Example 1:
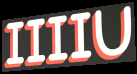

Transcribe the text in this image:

IIIIU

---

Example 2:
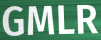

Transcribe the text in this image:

GMLR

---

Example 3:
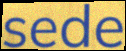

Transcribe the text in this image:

sede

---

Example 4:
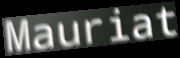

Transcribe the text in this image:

Mauriat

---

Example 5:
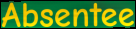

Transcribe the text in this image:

Absentee